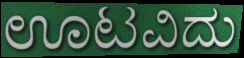
ಊಟವಿದು